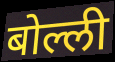
बोल्ली